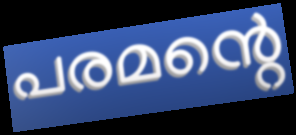
പരമന്റെ